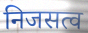
निजसत्व